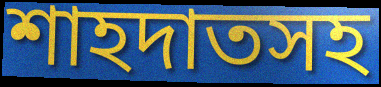
শাহদাতসহ